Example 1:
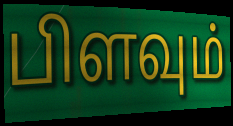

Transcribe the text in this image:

பிளவும்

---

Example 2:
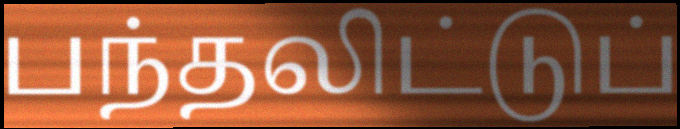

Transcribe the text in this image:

பந்தலிட்டுப்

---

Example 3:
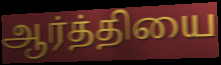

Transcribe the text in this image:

ஆர்த்தியை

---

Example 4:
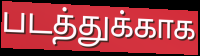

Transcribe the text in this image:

படத்துக்காக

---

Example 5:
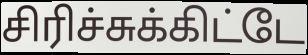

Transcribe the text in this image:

சிரிச்சுக்கிட்டே